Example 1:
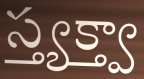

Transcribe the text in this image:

స్త్యక్త్వా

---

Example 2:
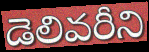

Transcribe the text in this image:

డెలివరీని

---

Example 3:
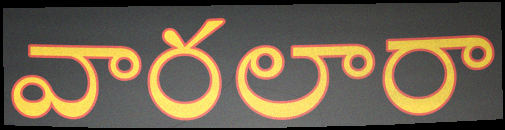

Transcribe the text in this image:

వారలారా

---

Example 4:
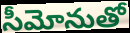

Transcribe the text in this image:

సీమోనుతో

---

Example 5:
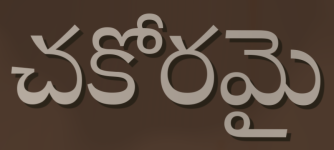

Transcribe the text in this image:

చకోరమై